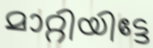
മാറ്റിയിട്ടേ